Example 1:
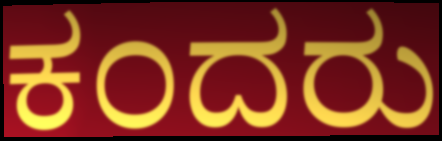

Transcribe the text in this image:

ಕಂದರು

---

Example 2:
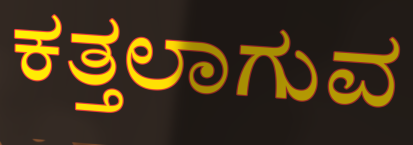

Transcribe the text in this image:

ಕತ್ತಲಾಗುವ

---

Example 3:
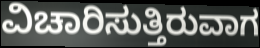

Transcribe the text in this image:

ವಿಚಾರಿಸುತ್ತಿರುವಾಗ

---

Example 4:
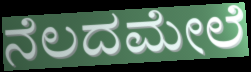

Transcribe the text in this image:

ನೆಲದಮೇಲೆ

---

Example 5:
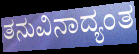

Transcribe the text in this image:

ತನುವಿನಾದ್ಯಂತ